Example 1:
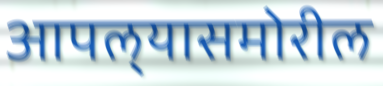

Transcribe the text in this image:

आपल्यासमोरील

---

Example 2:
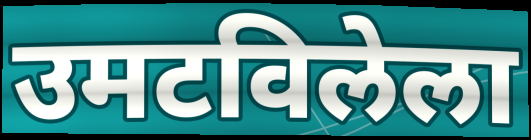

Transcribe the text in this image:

उमटविलेला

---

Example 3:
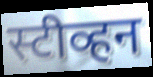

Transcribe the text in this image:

स्टीव्हन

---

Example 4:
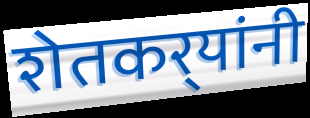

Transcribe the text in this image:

शेतकर्‍यांनी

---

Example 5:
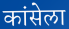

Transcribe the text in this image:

कांसेला